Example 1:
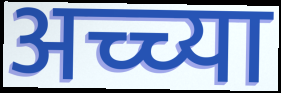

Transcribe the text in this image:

अच्च्या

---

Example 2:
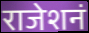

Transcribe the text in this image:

राजेशनं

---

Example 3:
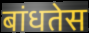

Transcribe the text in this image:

बांधतेस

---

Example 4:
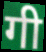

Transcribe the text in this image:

गी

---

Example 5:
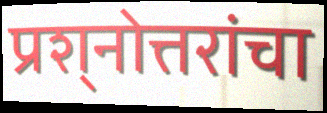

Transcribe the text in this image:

प्रश्नोत्तरांचा